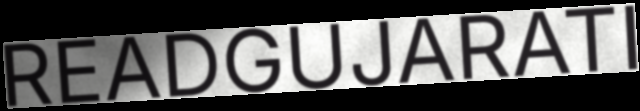
READGUJARATI